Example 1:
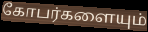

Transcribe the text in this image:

கோபர்களையும்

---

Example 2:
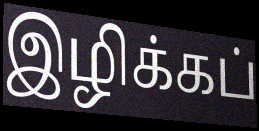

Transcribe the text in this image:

இழிக்கப்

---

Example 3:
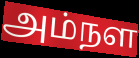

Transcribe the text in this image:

அம்நள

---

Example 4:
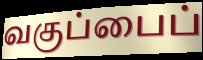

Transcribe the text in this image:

வகுப்பைப்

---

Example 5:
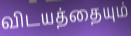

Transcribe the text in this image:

விடயத்தையும்